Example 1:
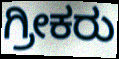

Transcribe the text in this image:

ಗ್ರೀಕರು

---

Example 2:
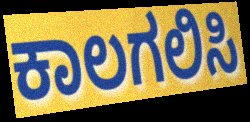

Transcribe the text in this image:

ಕಾಲಗಲಿಸಿ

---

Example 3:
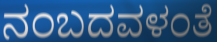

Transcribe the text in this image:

ನಂಬದವಳಂತೆ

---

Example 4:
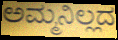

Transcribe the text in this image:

ಅಮ್ಮನಿಲ್ಲದ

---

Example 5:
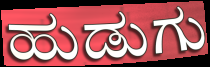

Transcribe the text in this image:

ಹುಡುಗು